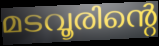
മടവൂരിന്റെ